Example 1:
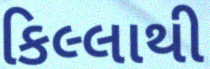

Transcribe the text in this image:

કિલ્લાથી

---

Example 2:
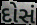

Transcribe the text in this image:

દોસં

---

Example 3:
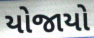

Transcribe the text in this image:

યોજાયો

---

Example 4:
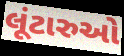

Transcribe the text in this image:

લૂંટારુઓ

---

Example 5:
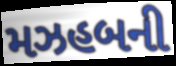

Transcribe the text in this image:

મઝહબની